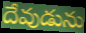
దేవుడును